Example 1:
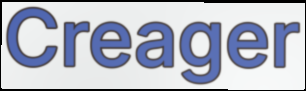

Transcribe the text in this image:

Creager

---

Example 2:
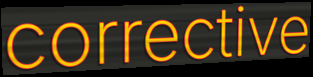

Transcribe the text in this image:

corrective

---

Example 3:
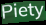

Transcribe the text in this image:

Piety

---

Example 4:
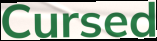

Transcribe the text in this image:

Cursed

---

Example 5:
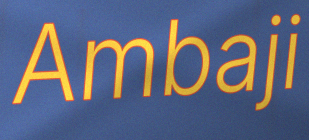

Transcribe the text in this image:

Ambaji